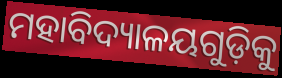
ମହାବିଦ୍ୟାଳୟଗୁଡ଼ିକୁ